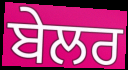
ਬੇਲਰ